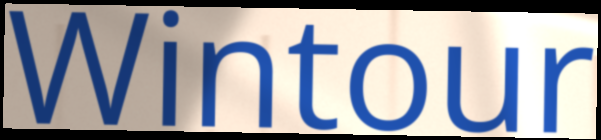
Wintour